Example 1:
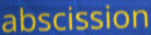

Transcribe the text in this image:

abscission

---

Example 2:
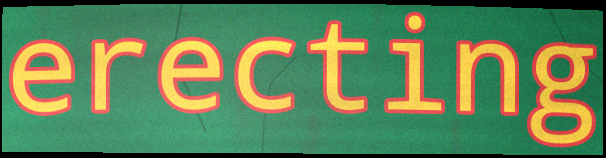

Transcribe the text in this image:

erecting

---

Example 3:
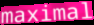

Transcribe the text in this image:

maximal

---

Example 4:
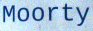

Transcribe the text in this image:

Moorty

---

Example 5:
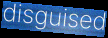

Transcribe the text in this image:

disguised